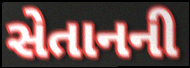
સેતાનની